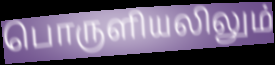
பொருளியலிலும்